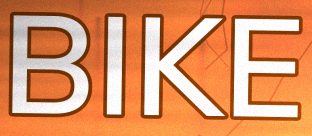
BIKE